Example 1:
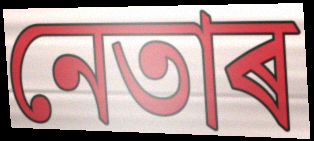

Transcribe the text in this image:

নেতাৰ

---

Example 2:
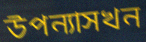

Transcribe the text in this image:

উপন্যাসখন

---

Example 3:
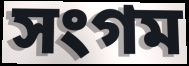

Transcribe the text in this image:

সংগম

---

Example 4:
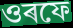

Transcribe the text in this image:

ওৰফে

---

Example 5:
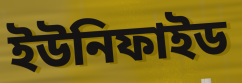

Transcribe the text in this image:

ইউনিফাইড